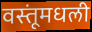
वस्तूंमधली